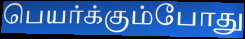
பெயர்க்கும்போது